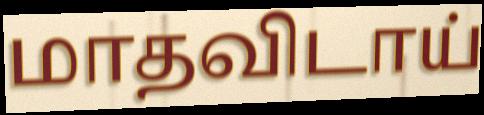
மாதவிடாய்